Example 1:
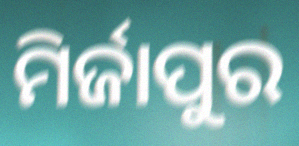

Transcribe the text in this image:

ମିର୍ଜାପୁର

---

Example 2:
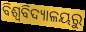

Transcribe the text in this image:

ବିଶ୍ୱବିଦ୍ୟାଳୟରୁ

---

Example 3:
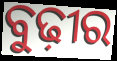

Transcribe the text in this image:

ବୁଢ଼ୀର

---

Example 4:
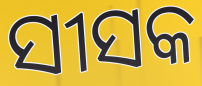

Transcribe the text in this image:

ସୀସକ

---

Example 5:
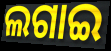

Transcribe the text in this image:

ଲଗାଇ